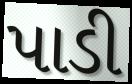
પાડી